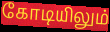
கோடியிலும்